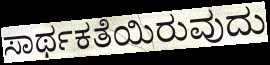
ಸಾರ್ಥಕತೆಯಿರುವುದು